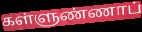
கள்ளுண்ணாப்